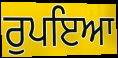
ਰੁਪਇਆ